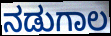
ನಡುಗಾಲ